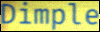
Dimple